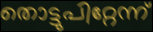
തൊട്ടുപിറ്റേന്ന്